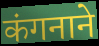
कंगनाने